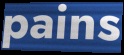
pains